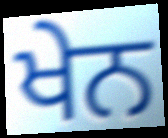
ਖੇਨ